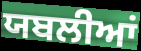
ਯਬਲੀਆਂ